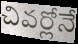
చివర్లోనే